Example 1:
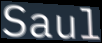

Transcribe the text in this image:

Saul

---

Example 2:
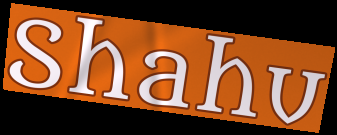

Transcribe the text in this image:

Shahu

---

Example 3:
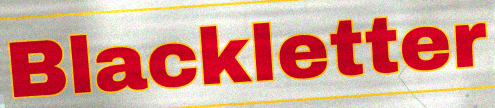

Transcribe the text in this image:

Blackletter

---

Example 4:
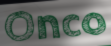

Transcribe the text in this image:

Onco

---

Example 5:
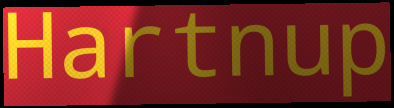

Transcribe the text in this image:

Hartnup